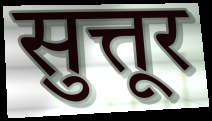
सुत्तूर